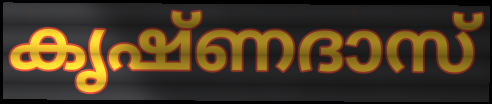
കൃഷ്ണദാസ്